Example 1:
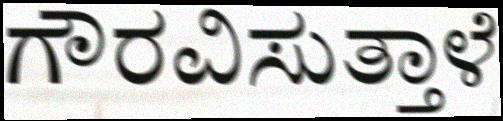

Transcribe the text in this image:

ಗೌರವಿಸುತ್ತಾಳೆ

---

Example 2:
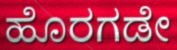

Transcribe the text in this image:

ಹೊರಗಡೇ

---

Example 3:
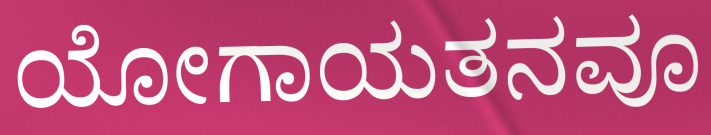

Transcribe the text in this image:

ಯೋಗಾಯತನವೂ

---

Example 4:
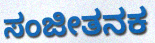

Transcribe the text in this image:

ಸಂಜೀತನಕ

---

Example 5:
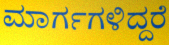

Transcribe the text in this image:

ಮಾರ್ಗಗಳಿದ್ದರೆ